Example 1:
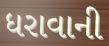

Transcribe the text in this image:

ધરાવાની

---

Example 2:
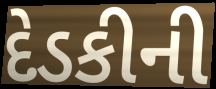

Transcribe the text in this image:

દેડકીની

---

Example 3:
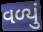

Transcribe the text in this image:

વળ્યું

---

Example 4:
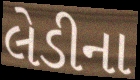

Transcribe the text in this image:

લેડીના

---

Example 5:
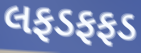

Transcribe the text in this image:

લફડફફડ